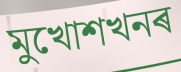
মুখোশখনৰ